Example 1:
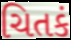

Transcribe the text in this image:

ચિતકં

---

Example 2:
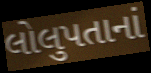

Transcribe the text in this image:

લોલુપતાનાં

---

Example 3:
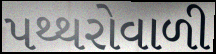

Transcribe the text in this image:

પથ્થરોવાળી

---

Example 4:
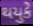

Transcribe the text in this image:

થયુકે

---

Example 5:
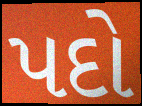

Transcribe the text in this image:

પદો